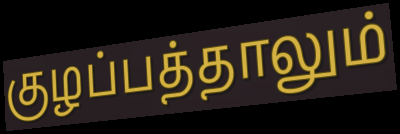
குழப்பத்தாலும்